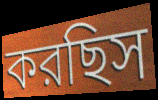
করছিস